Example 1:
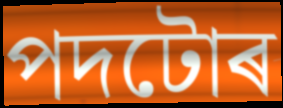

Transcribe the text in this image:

পদটোৰ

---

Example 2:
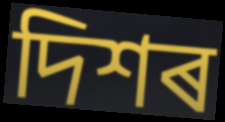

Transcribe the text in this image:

দিশৰ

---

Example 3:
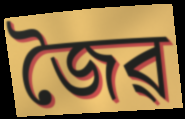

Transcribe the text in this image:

জৈৱ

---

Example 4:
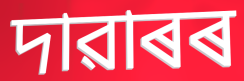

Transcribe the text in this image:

দাৱাৰৰ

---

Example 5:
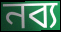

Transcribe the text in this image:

নব্য